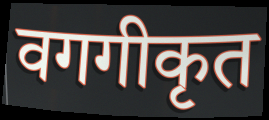
वगगीकृत